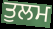
ਤੁਲਮ